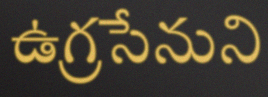
ఉగ్రసేనుని